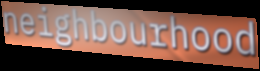
neighbourhood